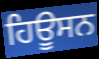
ਹਿਊਸਨ